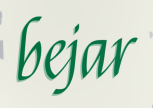
bejar